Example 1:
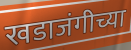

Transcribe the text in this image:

खडाजंगीच्या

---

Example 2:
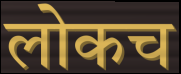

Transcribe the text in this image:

लोकच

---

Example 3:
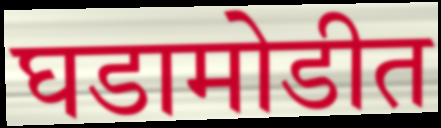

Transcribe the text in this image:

घडामोडीत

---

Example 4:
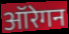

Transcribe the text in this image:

ऑरेगन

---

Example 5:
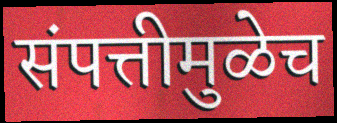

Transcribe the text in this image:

संपत्तीमुळेच